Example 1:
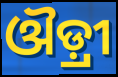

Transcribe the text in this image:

ଔଡ଼୍ରୀ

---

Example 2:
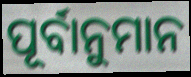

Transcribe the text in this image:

ପୂର୍ବାନୁମାନ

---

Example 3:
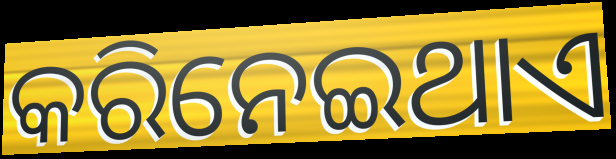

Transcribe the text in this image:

କରିନେଇଥାଏ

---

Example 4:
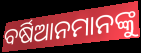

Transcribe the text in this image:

ବର୍ଷିଆନମାନଙ୍କୁ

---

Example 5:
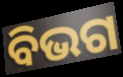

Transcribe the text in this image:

ବିଭଗ